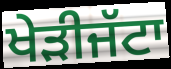
ਖੇੜੀਜੱਟਾ